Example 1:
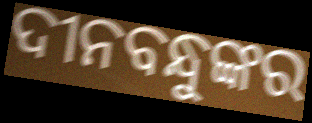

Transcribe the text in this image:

ଦୀନବନ୍ଧୁଙ୍କର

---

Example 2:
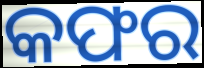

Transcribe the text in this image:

କଫର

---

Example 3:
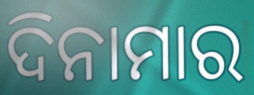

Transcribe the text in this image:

ଦିନାମାର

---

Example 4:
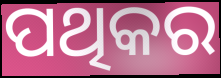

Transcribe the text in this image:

ପଥିକର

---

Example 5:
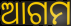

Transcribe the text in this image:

ଆଗମ